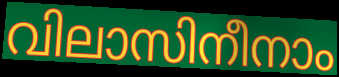
വിലാസിനീനാം